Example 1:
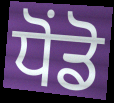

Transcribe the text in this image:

ਧੋਂਡੋ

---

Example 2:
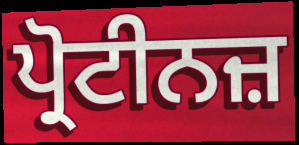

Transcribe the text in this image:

ਪ੍ਰੋਟੀਨਜ਼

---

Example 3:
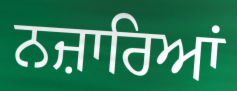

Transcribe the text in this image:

ਨਜ਼ਾਰਿਆਂ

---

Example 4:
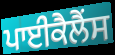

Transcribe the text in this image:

ਪਾਈਕੈਲੈਂਸ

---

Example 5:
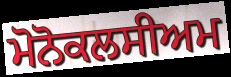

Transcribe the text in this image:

ਮੋਨੋਕਲਸੀਅਮ